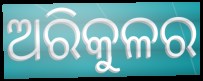
ଅରିକୁଳର